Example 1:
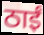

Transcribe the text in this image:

ठाईं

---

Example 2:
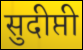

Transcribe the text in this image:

सुदीप्ती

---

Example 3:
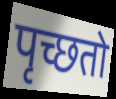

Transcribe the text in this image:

पृच्छतो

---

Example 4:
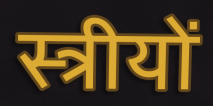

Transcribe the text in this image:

स्त्रीयों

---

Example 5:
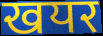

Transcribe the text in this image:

खयर